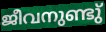
ജീവനുണ്ടു്